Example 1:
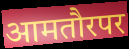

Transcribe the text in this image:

आमतौरपर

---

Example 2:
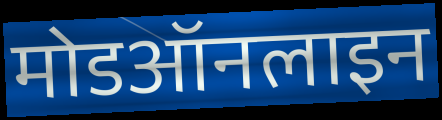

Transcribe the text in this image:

मोडऑनलाइन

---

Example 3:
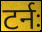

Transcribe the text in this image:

टर्नः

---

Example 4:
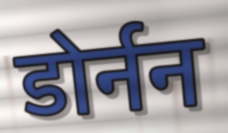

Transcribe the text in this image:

डोर्नन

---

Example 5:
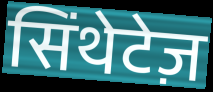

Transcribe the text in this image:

सिंथेटेज़